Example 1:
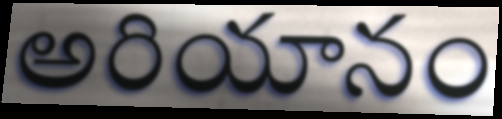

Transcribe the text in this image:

అరియానం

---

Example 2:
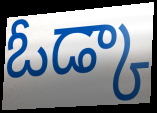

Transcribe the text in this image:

ఓడ్కా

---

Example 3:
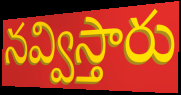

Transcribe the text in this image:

నవ్విస్తారు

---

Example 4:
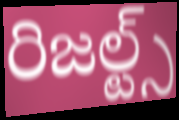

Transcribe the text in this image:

రిజల్ట్స్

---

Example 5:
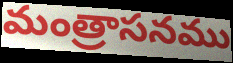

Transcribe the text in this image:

మంత్రాసనము